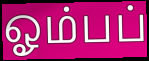
ஓம்பப்